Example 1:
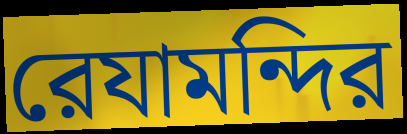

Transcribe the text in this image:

রেযামন্দির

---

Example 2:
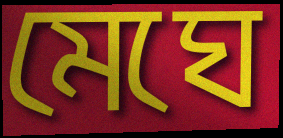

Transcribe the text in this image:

মেঘে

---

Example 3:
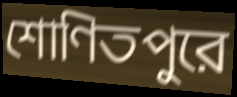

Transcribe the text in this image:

শোণিতপুরে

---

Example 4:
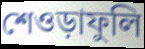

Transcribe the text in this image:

শেওড়াফুলি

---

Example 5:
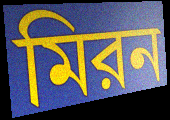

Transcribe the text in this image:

মিরন